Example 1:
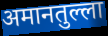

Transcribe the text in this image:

अमानतुल्ला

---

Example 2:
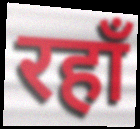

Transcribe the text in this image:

रहाँ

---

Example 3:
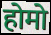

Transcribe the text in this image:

होमो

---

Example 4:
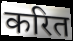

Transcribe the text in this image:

करित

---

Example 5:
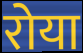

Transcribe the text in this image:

रोया